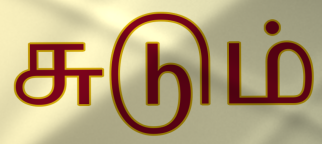
சுடும்